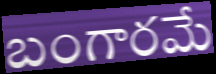
బంగారమే